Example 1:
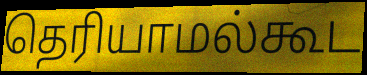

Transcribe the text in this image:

தெரியாமல்கூட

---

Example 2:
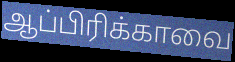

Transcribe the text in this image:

ஆப்பிரிக்காவை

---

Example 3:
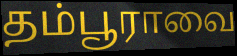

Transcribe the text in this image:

தம்பூராவை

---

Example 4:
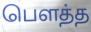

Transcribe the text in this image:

பெளத்த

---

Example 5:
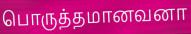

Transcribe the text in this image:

பொருத்தமானவனா